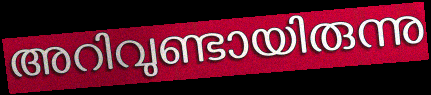
അറിവുണ്ടായിരുന്നു